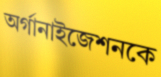
অর্গানাইজেশনকে